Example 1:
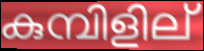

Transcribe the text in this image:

കുമ്പിളില്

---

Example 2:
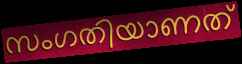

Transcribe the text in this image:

സംഗതിയാണത്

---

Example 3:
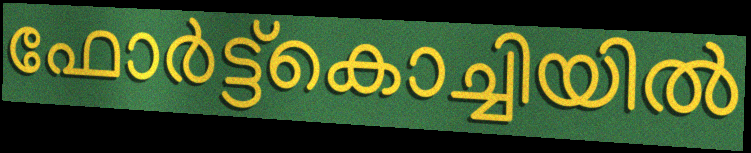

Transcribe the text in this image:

ഫോർട്ട്കൊച്ചിയിൽ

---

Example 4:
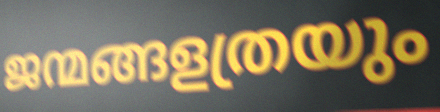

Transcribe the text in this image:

ജന്മങ്ങളത്രയും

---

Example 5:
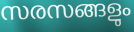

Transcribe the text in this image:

സരസങ്ങളും